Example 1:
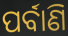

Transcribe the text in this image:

ପର୍ବାଣି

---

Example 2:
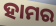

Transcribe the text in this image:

ହାମର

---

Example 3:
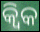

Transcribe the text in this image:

କ୍ୱିକ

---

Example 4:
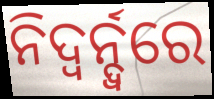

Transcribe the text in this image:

ନିଦ୍ଵର୍ନ୍ଦ୍ୱରେ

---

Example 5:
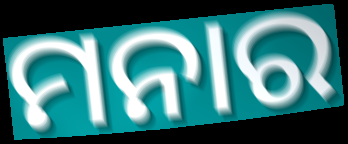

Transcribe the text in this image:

ମନାର